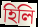
হিলি